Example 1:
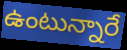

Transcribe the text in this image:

ఉంటున్నారే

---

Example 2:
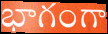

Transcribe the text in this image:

భాగంగా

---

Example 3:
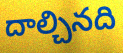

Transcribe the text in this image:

దాల్చినది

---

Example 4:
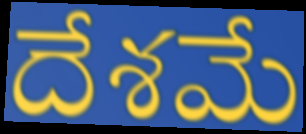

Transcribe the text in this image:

దేశమే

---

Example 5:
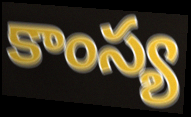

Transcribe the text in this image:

కాంస్య